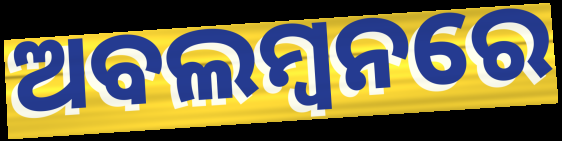
ଅବଲମ୍ବନରେ